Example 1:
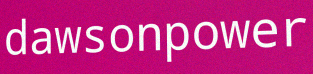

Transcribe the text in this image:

dawsonpower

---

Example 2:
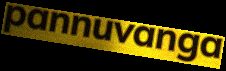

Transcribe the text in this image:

pannuvanga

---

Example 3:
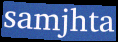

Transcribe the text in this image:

samjhta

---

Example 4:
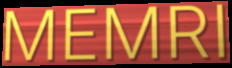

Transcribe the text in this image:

MEMRI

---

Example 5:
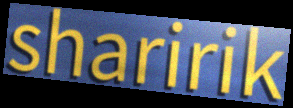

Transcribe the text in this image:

sharirik